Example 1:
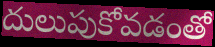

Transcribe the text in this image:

దులుపుకోవడంతో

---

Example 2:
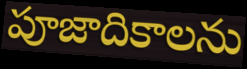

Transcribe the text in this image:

పూజాదికాలను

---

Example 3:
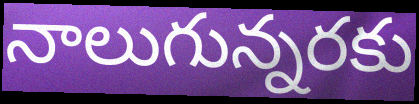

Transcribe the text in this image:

నాలుగున్నరకు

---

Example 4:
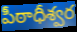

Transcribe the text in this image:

పీఠాధీశ్వర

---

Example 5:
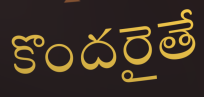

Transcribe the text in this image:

కొందరైతే